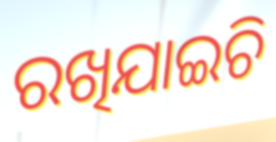
ରଖିଯାଇଚି